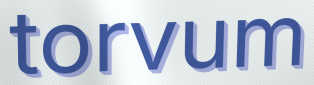
torvum